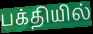
பக்தியில்